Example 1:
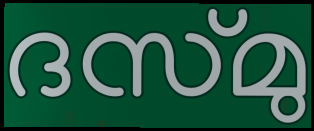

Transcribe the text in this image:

ദസ്മു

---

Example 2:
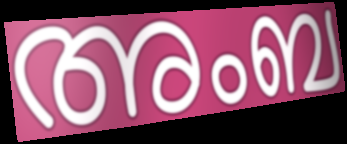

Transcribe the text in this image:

അംബ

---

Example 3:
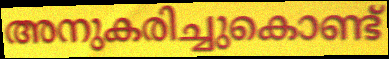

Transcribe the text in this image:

അനുകരിച്ചുകൊണ്ട്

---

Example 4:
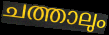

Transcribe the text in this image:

ചത്താലും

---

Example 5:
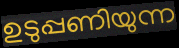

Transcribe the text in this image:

ഉടുപ്പണിയുന്ന